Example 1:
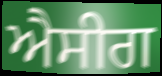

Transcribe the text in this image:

ਐਸੀਗ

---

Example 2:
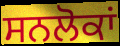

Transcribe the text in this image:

ਸਨਲੋਕਾਂ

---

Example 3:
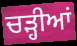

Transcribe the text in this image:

ਚੜ੍ਹੀਆਂ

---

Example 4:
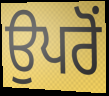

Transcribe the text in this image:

ਉਪਰੋਂ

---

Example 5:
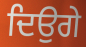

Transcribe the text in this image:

ਦਿਉਗੇ